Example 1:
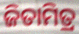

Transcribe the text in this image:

ଜିତାମିତ୍ର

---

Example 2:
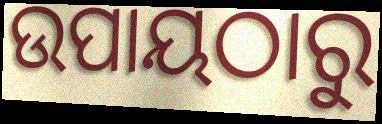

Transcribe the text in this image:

ଉପାୟଠାରୁ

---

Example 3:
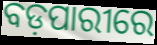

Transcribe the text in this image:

ବଡ଼ପାରୀରେ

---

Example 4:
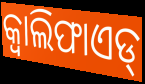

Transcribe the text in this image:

କ୍ୱାଲିଫାଏଡ୍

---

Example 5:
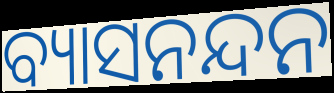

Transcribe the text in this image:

ବ୍ୟାସନନ୍ଦନ